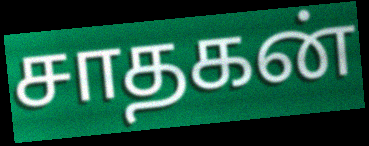
சாதகன்